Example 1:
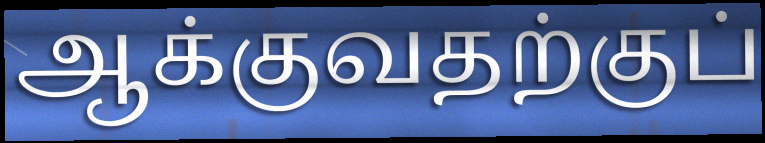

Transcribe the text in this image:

ஆக்குவதற்குப்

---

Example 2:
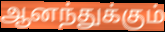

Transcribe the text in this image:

ஆனந்துக்கும்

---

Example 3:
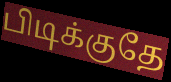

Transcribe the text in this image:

பிடிக்குதே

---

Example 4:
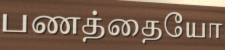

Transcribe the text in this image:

பணத்தையோ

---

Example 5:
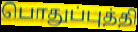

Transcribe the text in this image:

பொதுப்புத்தி